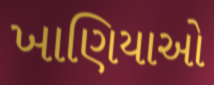
ખાણિયાઓ